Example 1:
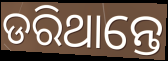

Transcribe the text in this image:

ଡରିଥାନ୍ତେ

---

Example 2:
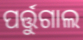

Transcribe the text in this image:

ପର୍ତ୍ତୁଗାଲ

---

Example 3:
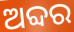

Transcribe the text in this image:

ଅବ୍ଦର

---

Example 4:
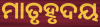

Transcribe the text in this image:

ମାତୃହୃଦୟ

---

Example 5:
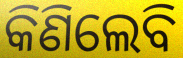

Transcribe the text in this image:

କିଣିଲେବି